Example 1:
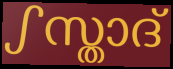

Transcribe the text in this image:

ഽസ്താദ്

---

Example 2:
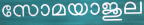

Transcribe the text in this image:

സോമയാജുല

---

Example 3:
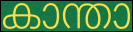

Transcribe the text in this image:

കാന്താ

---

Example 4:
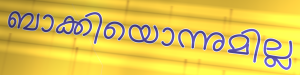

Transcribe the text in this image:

ബാക്കിയൊന്നുമില്ല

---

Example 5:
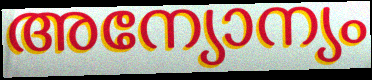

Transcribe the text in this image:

അന്യോന്യം